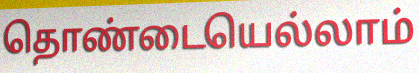
தொண்டையெல்லாம்